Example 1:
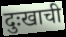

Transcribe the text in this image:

दुःखाची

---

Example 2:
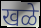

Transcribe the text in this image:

खळे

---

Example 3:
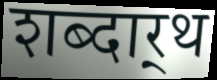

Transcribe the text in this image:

शब्दार्थ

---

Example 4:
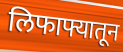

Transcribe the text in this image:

लिफाफ्यातून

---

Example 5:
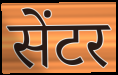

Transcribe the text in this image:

सेंटर